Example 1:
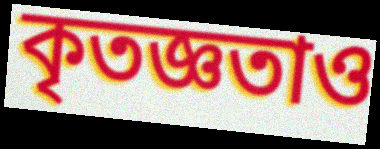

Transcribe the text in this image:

কৃতজ্ঞতাও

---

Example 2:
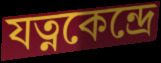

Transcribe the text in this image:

যত্নকেন্দ্রে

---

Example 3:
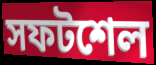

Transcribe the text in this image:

সফটশেল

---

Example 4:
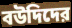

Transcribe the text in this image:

বউদিদের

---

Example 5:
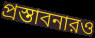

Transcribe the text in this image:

প্রস্তাবনারও